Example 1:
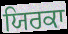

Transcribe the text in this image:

ਯਿਰਕਾ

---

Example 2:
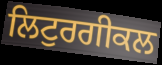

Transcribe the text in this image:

ਲਿਟੁਰਗੀਕਲ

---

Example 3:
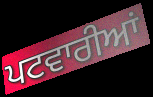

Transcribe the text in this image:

ਪਟਵਾਰੀਆਂ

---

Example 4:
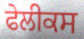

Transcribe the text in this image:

ਫੇਲੀਕਸ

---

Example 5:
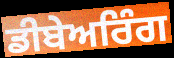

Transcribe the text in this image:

ਡੀਬੇਅਰਿੰਗ